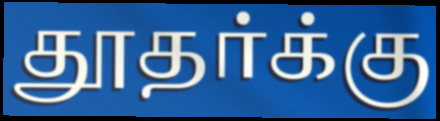
தூதர்க்கு